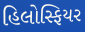
હિલોસ્ફિયર